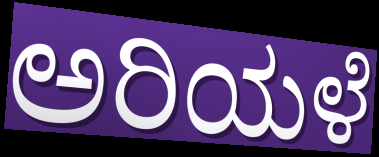
ಅರಿಯಳೆ